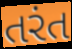
તરંત